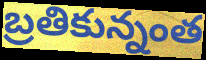
బ్రతికున్నంత